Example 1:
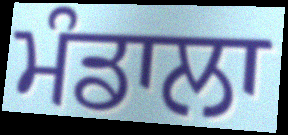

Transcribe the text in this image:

ਮੰਡਾਲਾ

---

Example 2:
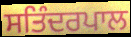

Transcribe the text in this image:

ਸਤਿੰਦਰਪਾਲ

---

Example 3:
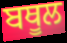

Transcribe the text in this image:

ਬਥੂਲ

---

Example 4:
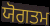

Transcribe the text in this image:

ਯੋਗਤਮ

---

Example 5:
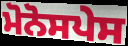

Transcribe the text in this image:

ਮੋਨੋਸਪੇਸ